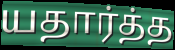
யதார்த்த